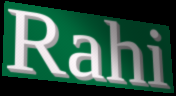
Rahi